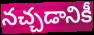
నచ్చడానికీ